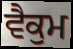
ਵੈਕੁਮ